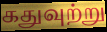
கதுவுற்று